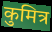
कुमित्र